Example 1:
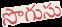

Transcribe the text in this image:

సొగుసు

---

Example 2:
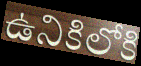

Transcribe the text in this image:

ఉనికిలోకి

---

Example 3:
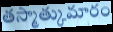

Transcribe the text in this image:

తస్మాత్కుమారం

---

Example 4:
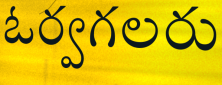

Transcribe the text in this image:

ఓర్వగలరు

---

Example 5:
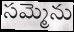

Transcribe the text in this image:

సమ్మెను